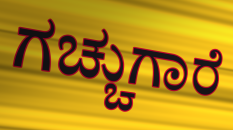
ಗಚ್ಚುಗಾರೆ